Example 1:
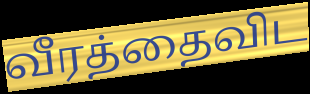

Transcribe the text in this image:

வீரத்தைவிட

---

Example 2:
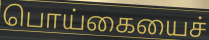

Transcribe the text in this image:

பொய்கையைச்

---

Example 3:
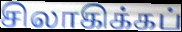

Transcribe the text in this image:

சிலாகிக்கப்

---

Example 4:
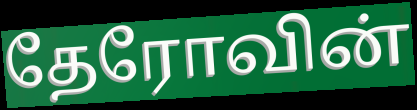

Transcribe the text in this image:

தேரோவின்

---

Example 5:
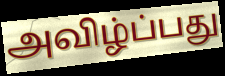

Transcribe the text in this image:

அவிழ்ப்பது